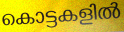
കൊട്ടകളിൽ